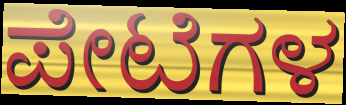
ಪೇಟೆಗಳ